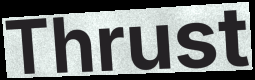
Thrust